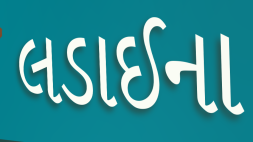
લડાઈના